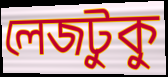
লেজটুকু